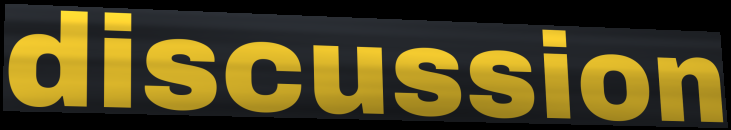
discussion